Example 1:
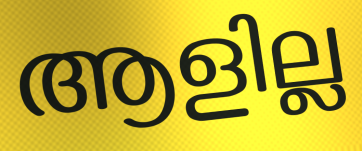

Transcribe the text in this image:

ആളില്ല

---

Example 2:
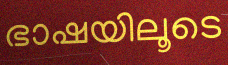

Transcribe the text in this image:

ഭാഷയിലൂടെ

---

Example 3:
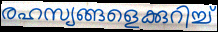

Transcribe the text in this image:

രഹസ്യങ്ങളെക്കുറിച്ച്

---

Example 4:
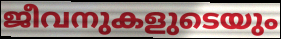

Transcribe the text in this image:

ജീവനുകളുടെയും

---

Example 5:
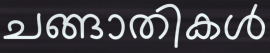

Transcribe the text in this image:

ചങ്ങാതികൾ